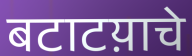
बटाटय़ाचे